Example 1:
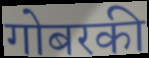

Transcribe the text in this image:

गोबरकी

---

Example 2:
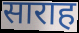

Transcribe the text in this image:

साराह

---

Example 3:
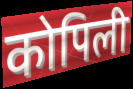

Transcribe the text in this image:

कोपिली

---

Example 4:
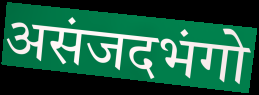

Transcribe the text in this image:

असंजदभंगो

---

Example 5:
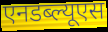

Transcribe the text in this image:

एनडब्ल्यूएस